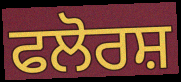
ਫਲੋਰਸ਼